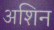
अशिन